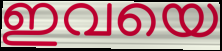
ഇവയെ